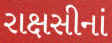
રાક્ષસીનાં